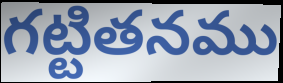
గట్టితనము